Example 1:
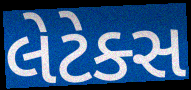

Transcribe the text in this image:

લેટેક્સ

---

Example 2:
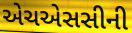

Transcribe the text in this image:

એચએસસીની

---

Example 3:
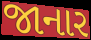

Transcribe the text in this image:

જાનાર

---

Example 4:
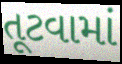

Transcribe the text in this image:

તૂટવામાં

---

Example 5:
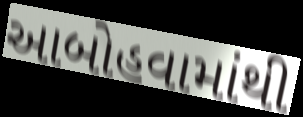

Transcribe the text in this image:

આબોહવામાંથી